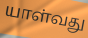
யாள்வது